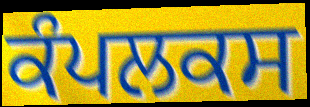
ਕੰਪਲਕਸ